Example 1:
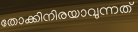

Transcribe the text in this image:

തോക്കിനിരയാവുന്നത്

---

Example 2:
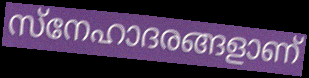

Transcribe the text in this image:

സ്നേഹാദരങ്ങളാണ്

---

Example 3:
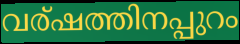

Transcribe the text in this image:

വര്ഷത്തിനപ്പുറം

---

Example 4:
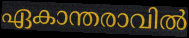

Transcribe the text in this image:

ഏകാന്തരാവിൽ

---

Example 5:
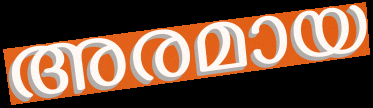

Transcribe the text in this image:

അരമായ